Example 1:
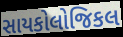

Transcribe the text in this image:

સાયકોલોજિકલ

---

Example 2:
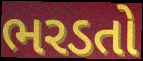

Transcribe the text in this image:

ભરડતો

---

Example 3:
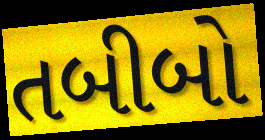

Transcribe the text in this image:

તબીબો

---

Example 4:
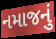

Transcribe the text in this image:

નમાજનું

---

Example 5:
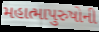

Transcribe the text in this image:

મહાત્માપુરુષોની